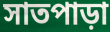
সাতপাড়া